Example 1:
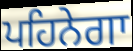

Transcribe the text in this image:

ਪਹਿਨੇਗਾ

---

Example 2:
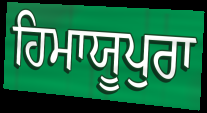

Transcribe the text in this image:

ਹਿਮਾਯੂਪੁਰਾ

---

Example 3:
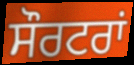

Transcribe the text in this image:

ਸੌਰਟਰਾਂ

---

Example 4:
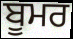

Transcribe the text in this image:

ਬੂਮਰ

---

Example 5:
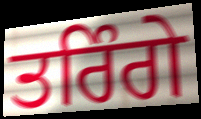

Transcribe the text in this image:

ਤਰਿੰਗੇ